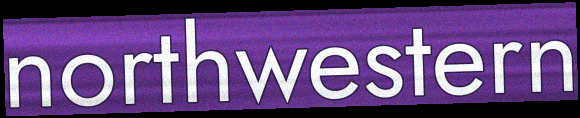
northwestern